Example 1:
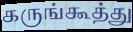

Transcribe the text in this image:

கருங்கூத்து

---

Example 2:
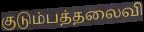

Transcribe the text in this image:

குடும்பத்தலைவி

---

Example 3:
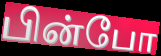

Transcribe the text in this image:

பின்போ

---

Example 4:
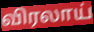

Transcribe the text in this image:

விரலாய்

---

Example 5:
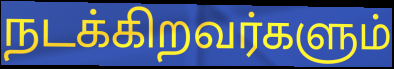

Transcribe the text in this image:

நடக்கிறவர்களும்